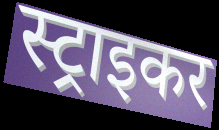
स्ट्राइकर